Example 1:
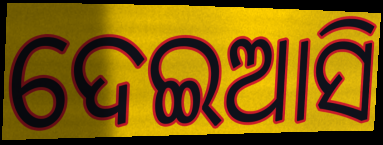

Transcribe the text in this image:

ଦେଇଆସି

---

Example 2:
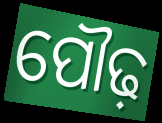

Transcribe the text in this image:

ପୌଢ଼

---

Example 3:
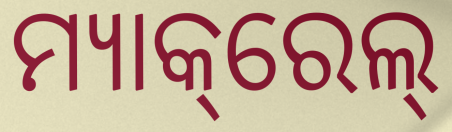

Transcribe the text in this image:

ମ୍ୟାକ୍‌ରେଲ୍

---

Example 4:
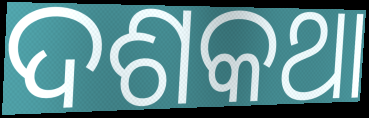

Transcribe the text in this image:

ଦଶକଥା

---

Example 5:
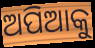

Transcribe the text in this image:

ଅପିଆକୁ